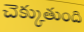
చెక్కుతుంది